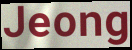
Jeong